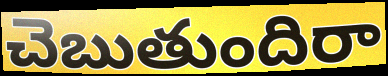
చెబుతుందిరా